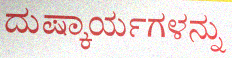
ದುಷ್ಕಾರ್ಯಗಳನ್ನು